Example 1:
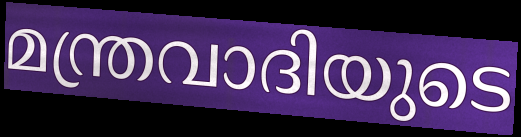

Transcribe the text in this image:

മന്ത്രവാദിയുടെ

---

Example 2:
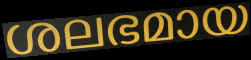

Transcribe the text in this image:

ശലഭമായ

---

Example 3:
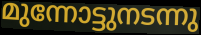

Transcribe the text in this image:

മുന്നോട്ടുനടന്നു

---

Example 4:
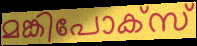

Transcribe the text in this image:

മങ്കിപോക്സ്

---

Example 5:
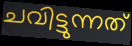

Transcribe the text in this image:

ചവിട്ടുന്നത്